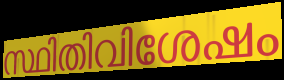
സ്ഥിതിവിശേഷം